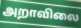
அறாவிலை